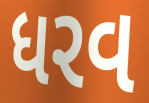
ધરવ